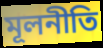
মূলনীতি